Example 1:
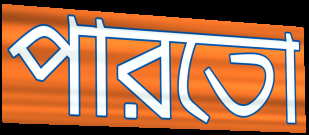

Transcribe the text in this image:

পারতো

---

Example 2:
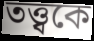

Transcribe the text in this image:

তত্ত্বকে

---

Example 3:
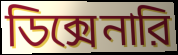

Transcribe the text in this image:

ডিক্সেনারি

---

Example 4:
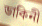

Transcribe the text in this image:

ডাকিনী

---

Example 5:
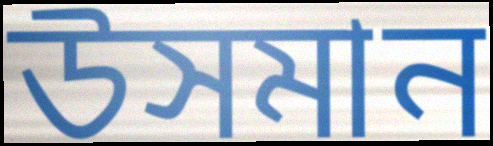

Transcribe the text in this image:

উসমান